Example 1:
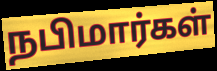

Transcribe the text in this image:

நபிமார்கள்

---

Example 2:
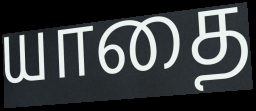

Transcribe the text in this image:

யாதை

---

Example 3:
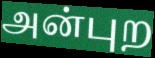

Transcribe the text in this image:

அன்புற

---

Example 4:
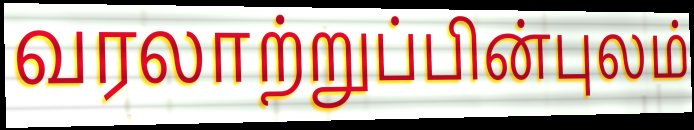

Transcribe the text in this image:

வரலாற்றுப்பின்புலம்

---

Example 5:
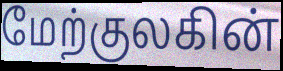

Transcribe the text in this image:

மேற்குலகின்